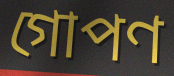
গোপণ